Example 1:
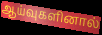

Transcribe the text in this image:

ஆய்வுகளினால்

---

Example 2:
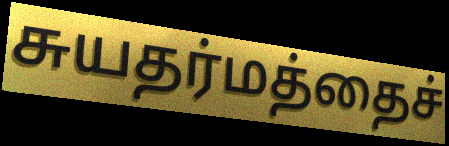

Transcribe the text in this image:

சுயதர்மத்தைச்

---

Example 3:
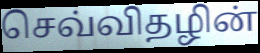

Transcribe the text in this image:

செவ்விதழின்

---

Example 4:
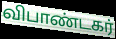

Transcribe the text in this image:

விபாண்டகர்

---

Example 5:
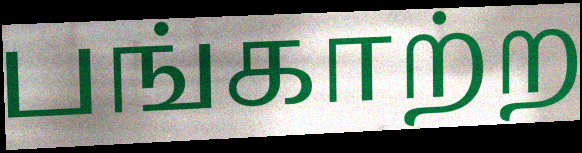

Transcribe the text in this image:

பங்காற்ற